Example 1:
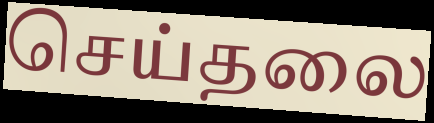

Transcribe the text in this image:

செய்தலை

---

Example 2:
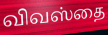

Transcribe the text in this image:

விவஸ்தை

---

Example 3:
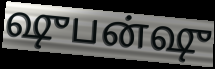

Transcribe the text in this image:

ஷுபன்ஷு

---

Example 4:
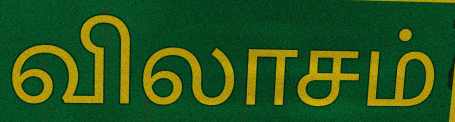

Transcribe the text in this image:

விலாசம்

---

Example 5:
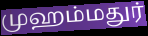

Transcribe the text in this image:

முஹம்மதுர்